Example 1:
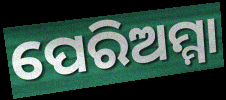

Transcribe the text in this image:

ପେରିଅମ୍ମା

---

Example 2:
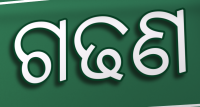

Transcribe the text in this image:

ଗଢଣ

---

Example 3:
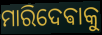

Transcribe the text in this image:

ମାରିଦେଵାକୁ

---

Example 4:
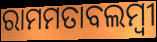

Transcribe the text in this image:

ରାମମତାବଲମ୍ବୀ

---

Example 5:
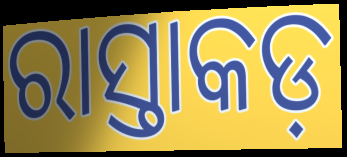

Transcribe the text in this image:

ରାସ୍ତାକଡ଼